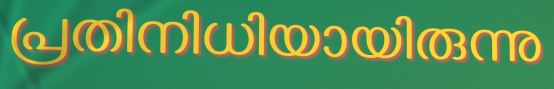
പ്രതിനിധിയായിരുന്നു